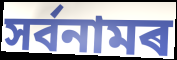
সৰ্বনামৰ